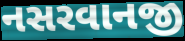
નસરવાનજી